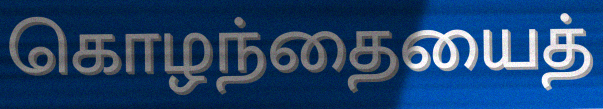
கொழந்தையைத்